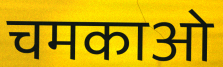
चमकाओ